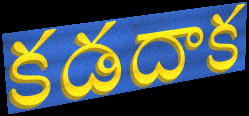
కడదాక